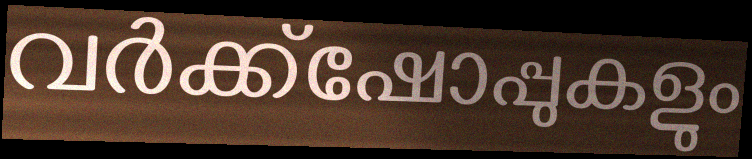
വർക്ക്ഷോപ്പുകളും